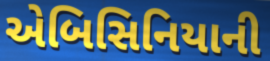
એબિસિનિયાની